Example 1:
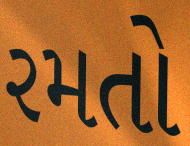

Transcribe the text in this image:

રમતો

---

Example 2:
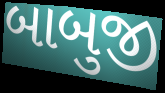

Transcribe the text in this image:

બાબુજી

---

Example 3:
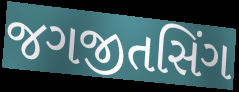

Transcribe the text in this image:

જગજીતસિંગ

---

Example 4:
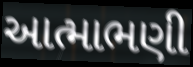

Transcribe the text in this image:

આત્માભણી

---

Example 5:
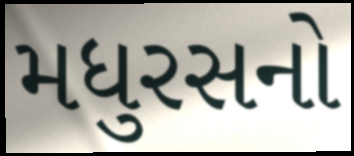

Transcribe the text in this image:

મધુરસનો